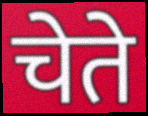
चेते